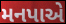
મનપાએ